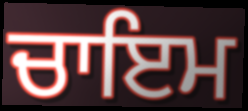
ਚਾਇਮ